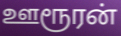
ஊரூரன்